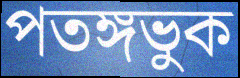
পতঙ্গভুক